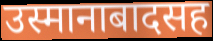
उस्मानाबादसह